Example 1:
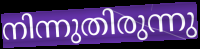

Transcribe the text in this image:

നിന്നുതിരുന്നു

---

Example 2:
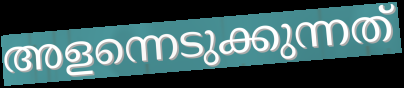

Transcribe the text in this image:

അളന്നെടുക്കുന്നത്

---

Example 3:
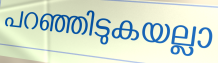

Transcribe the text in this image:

പറഞ്ഞിടുകയല്ലാ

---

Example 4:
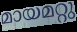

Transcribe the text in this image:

മായമറ്റു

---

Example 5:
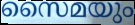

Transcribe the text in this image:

സൈമയും